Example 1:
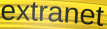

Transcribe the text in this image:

extranet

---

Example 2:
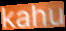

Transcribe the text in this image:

kahu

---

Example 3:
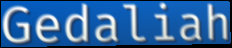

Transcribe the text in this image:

Gedaliah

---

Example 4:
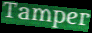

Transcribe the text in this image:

Tamper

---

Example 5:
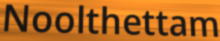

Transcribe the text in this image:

Noolthettam